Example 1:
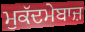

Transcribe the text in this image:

ਮੁਕੱਦਮੇਬਾਜ਼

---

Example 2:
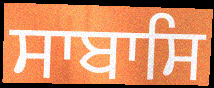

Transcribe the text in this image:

ਸਾਬਾਸਿ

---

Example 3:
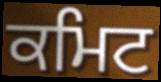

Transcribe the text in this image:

ਕਮਿਟ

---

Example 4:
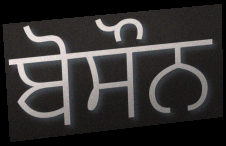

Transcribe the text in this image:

ਬੋਸੌਨ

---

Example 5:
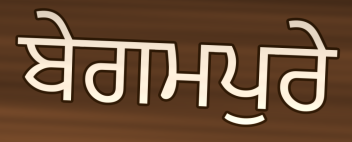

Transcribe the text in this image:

ਬੇਗਮਪੁਰੇ